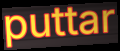
puttar